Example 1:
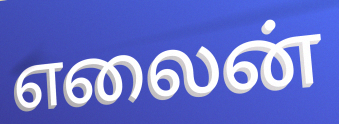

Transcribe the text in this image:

எலைன்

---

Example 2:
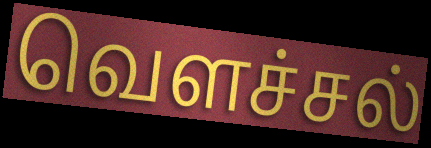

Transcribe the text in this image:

வெளச்சல்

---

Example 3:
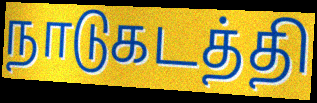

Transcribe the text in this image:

நாடுகடத்தி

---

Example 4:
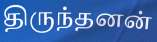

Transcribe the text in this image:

திருந்தனன்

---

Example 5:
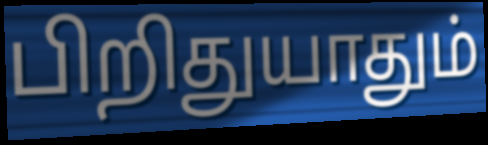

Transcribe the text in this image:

பிறிதுயாதும்